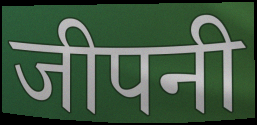
जीपनी